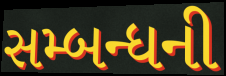
સમ્બન્ધની